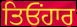
ਤਿਓਂਹਾਰ